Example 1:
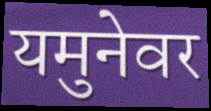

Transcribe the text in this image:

यमुनेवर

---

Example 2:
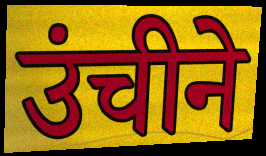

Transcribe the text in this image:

उंचीने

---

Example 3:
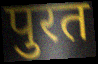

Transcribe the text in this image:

पुरत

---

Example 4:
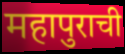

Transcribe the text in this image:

महापुराची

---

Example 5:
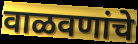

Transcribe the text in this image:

वाळवणांचे